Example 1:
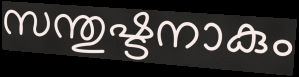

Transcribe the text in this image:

സന്തുഷ്ടനാകും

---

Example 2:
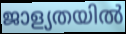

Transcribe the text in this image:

ജാള്യതയിൽ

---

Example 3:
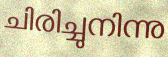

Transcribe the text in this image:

ചിരിച്ചുനിന്നു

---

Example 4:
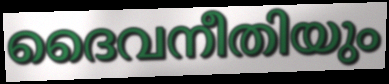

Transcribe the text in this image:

ദൈവനീതിയും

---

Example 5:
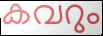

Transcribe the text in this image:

കവറും